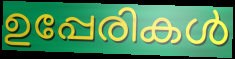
ഉപ്പേരികൾ